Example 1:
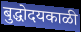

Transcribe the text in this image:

बुद्धोदयकाळी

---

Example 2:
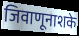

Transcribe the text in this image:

जिवाणूनाशके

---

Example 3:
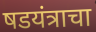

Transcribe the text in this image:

षडयंत्राचा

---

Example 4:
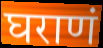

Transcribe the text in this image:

घराणं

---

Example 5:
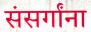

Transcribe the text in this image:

संसर्गांना